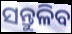
ସନ୍ତୁଳିବ